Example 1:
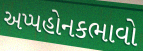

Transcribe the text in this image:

અપ્પહોનકભાવો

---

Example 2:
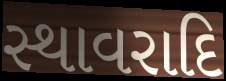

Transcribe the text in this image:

સ્થાવરાદિ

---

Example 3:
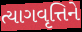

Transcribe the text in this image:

ત્યાગવૃત્તિને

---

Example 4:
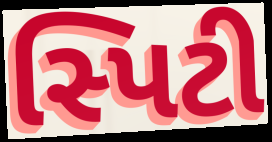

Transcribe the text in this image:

સ્પિટી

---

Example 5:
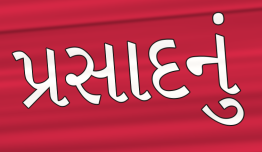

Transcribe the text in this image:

પ્રસાદનું